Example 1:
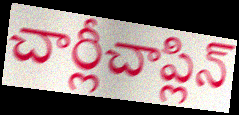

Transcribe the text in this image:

చార్లీచాప్లిన్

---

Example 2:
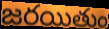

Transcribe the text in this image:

జరయితుం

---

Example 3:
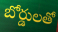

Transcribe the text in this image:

బోర్డులతో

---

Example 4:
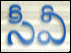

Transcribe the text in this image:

సీవీ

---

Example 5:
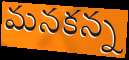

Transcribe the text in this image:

మనకన్న